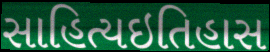
સાહિત્યઇતિહાસ